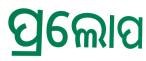
ପ୍ରଲୋପ